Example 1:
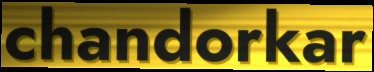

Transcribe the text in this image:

chandorkar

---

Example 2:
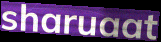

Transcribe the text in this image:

sharuaat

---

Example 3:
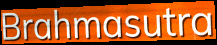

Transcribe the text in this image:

Brahmasutra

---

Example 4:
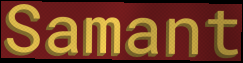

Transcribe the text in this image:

Samant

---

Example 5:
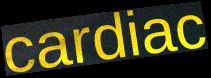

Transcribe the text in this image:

cardiac